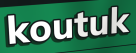
koutuk